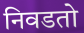
निवडतो